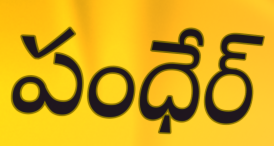
పంధేర్